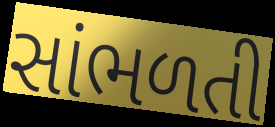
સાંભળતી